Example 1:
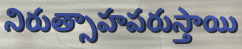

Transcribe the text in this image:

నిరుత్సాహపరుస్తాయి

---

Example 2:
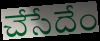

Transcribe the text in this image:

చేసేదేం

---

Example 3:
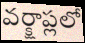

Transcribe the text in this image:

వర్క్షాప్లలో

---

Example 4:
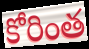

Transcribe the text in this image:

కోరింత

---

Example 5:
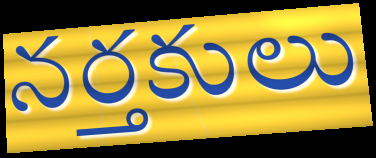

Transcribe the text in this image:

నర్తకులు